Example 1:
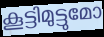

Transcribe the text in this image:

കൂട്ടിമുട്ടുമോ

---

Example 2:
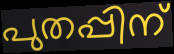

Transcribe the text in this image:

പുതപ്പിന്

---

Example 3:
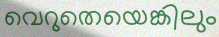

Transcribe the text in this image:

വെറുതെയെങ്കിലും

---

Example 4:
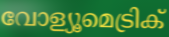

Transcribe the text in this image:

വോള്യൂമെട്രിക്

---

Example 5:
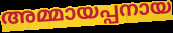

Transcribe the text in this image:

അമ്മായപ്പനായ